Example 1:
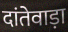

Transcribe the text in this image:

दांतेवाड़ा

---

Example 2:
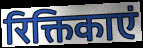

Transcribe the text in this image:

रिक्तिकाएं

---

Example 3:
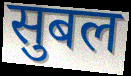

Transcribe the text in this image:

सुबल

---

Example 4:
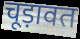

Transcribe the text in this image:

चूड़ावत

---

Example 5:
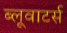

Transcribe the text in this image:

ब्लूवाटर्स